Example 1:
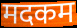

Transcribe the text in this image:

मदकम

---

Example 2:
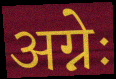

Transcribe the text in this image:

अग्नेः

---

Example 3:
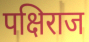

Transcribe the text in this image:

पक्षिराज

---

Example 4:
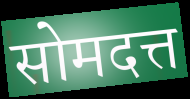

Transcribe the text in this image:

सोमदत्त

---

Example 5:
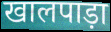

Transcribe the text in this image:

खालपाड़ा